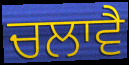
ਚਲਾਵੈ